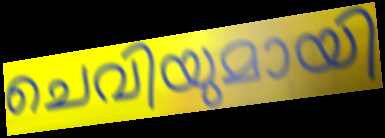
ചെവിയുമായി